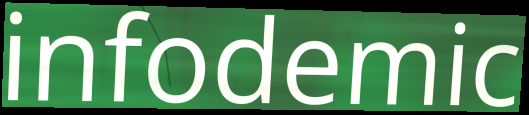
infodemic